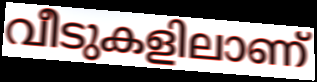
വീടുകളിലാണ്